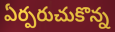
ఏర్పరుచుకొన్న